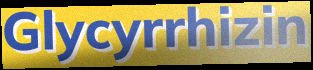
Glycyrrhizin